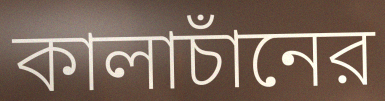
কালাচাঁনের